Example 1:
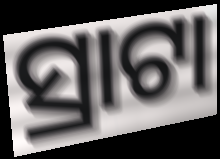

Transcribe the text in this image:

ସ୍ରାଟା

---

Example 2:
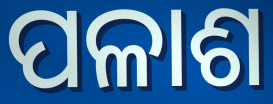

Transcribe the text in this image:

ପଳାଶ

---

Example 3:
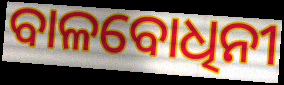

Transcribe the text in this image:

ବାଳବୋଧିନୀ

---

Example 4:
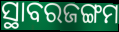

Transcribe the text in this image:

ସ୍ଥାବରଜଙ୍ଗମ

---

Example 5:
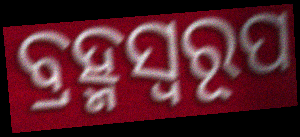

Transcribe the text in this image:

ବ୍ରହ୍ମସ୍ୱରୂପ